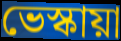
ভেস্কায়া